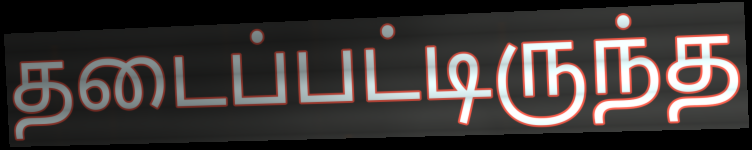
தடைப்பட்டிருந்த